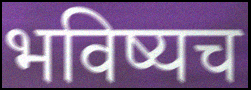
भविष्यच